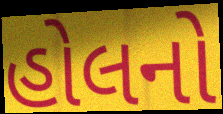
હોલનો